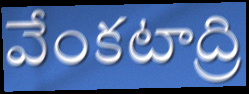
వేంకటాద్రి